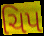
ચિપ